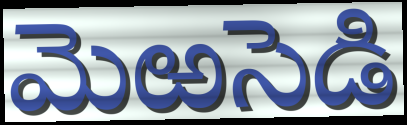
మెఱసెడి